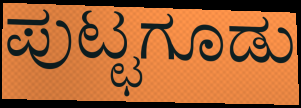
ಪುಟ್ಟಗೂಡು